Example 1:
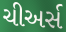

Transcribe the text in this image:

ચીઅર્સ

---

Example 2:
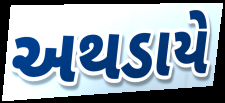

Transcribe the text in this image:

અથડાયે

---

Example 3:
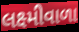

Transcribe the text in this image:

લક્ષ્મીવાળા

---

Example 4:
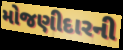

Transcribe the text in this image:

મોજણીદારની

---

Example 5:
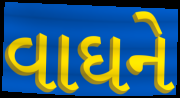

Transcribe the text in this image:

વાઘને